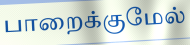
பாறைக்குமேல்